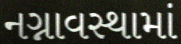
નગ્નાવસ્થામાં